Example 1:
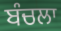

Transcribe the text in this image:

ਬੰਚਲਾ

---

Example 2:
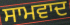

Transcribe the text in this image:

ਸਾਮਵਾਦ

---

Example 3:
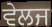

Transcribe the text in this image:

ਵੇਲਜ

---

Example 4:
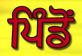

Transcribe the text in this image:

ਪਿੰਡੋਂ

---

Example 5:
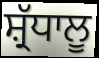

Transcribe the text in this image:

ਸ਼੍ਰੱਧਾਲੂ